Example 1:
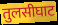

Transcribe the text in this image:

तुलसीघाट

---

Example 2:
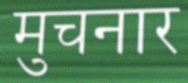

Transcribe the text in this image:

मुचनार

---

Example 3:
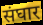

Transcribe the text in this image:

संघार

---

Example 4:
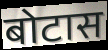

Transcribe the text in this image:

बोटास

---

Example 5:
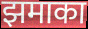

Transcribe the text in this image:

झमाका